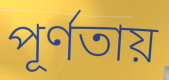
পূর্ণতায়